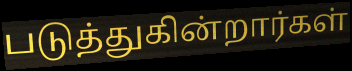
படுத்துகின்றார்கள்